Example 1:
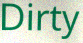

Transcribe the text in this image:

Dirty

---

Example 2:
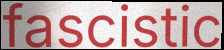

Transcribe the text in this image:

fascistic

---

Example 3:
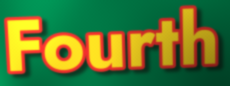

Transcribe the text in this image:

Fourth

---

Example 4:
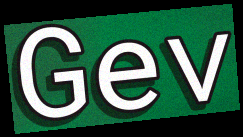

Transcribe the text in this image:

Gev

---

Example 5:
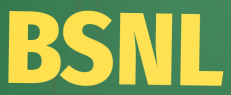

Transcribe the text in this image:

BSNL